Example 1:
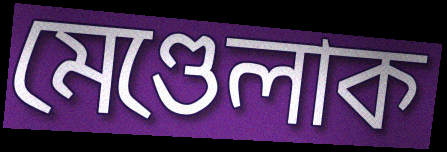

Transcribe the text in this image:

মেণ্ডেলাক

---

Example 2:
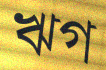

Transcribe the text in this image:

ঋগ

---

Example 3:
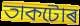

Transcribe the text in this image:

তাকটোৰ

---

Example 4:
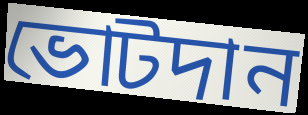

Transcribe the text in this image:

ভোটদান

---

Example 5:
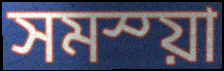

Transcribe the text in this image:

সমস্য়া